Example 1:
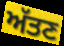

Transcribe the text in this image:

ਅੱਤਣ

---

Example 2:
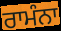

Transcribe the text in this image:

ਰਾਮੰਨਾ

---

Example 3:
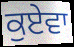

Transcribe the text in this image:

ਕੁਏਵਾ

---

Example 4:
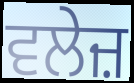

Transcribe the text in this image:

ਵਲੇਜ਼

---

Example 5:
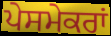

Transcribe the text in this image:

ਪੇਸਮੇਕਰਾਂ